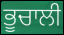
ਭੂਚਾਲੀ